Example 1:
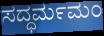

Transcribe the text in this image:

ಸದ್ಧರ್ಮಮಂ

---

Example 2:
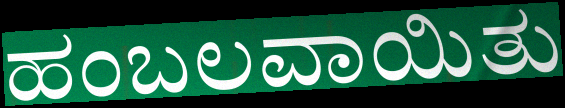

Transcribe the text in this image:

ಹಂಬಲವಾಯಿತು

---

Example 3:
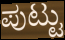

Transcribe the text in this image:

ಪುಟ್ಟು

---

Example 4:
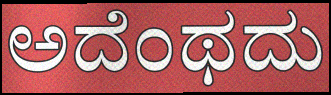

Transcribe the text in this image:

ಅದೆಂಥದು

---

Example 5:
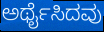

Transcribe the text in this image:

ಅರ್ಥೈಸಿದವು